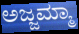
ಅಜ್ಜಮ್ಮಾ